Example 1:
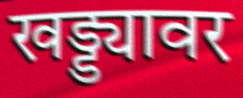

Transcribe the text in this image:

खड्ड्यावर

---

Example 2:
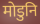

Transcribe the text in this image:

मोडुनि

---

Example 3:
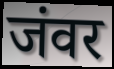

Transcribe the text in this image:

जंवर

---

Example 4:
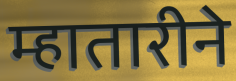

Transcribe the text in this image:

म्हातारीने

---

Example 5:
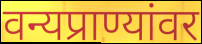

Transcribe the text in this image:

वन्यप्राण्यांवर